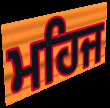
ਮਹਿਜ